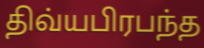
திவ்யபிரபந்த